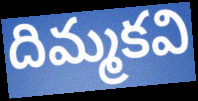
దిమ్మకవి